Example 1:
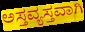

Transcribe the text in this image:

ಅಸ್ತವ್ಯಸ್ತವಾಗಿ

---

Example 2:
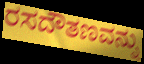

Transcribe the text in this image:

ರಸದೌತಣವನ್ನು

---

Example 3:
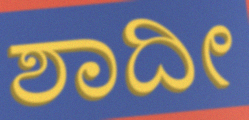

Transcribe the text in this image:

ಶಾದೀ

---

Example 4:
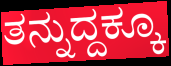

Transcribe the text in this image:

ತನ್ನುದ್ದಕ್ಕೂ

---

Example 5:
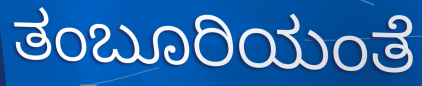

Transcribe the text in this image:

ತಂಬೂರಿಯಂತೆ